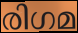
രിഗമ